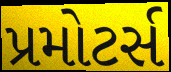
પ્રમોટર્સ